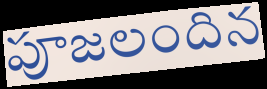
పూజలందిన